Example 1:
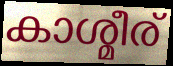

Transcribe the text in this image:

കാശ്മീര്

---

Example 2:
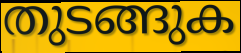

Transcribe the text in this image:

തുടങ്ങുക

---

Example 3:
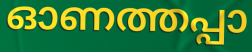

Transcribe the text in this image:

ഓണത്തപ്പാ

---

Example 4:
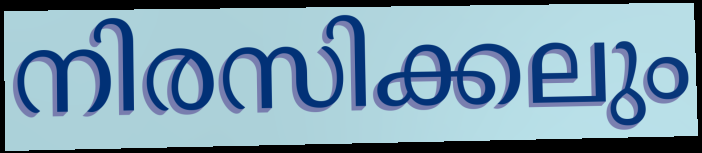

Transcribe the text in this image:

നിരസിക്കലും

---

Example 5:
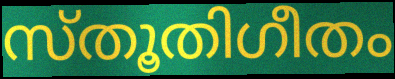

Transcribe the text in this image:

സ്തൂതിഗീതം